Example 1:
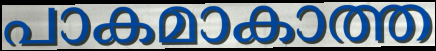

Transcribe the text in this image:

പാകമാകാത്ത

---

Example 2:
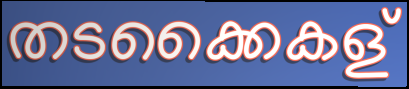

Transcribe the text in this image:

തടക്കൈകള്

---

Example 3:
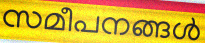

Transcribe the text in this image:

സമീപനങ്ങൾ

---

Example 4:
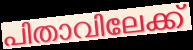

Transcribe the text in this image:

പിതാവിലേക്ക്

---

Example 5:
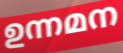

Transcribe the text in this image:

ഉന്നമന